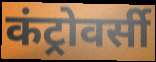
कंट्रोवर्सी